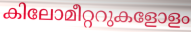
കിലോമീറ്ററുകളോളം